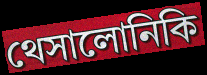
থেসালোনিকি